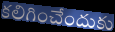
కలిగించేందుకు